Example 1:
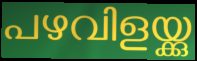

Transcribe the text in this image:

പഴവിളയ്ക്കു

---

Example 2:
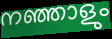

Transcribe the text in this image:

നഞ്ഞാളും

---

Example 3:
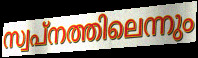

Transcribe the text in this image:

സ്വപ്നത്തിലെന്നും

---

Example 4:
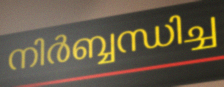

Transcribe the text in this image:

നിർബ്ബന്ധിച്ച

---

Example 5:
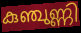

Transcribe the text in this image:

കുഞ്ചുണ്ണി